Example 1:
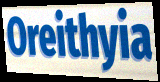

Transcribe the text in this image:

Oreithyia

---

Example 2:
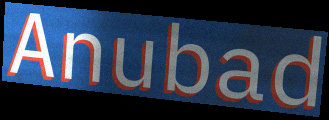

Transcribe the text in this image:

Anubad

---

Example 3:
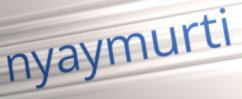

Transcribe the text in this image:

nyaymurti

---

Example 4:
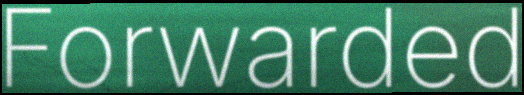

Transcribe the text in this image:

Forwarded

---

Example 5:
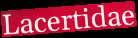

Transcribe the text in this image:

Lacertidae